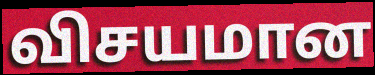
விசயமான